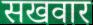
सखवार